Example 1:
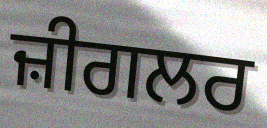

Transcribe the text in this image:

ਜ਼ੀਗਲਰ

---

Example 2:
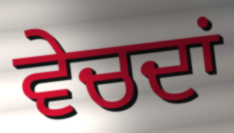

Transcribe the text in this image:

ਵੇਚਦਾਂ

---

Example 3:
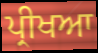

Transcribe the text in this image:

ਪ੍ਰੀਖਆ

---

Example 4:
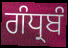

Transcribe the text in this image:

ਗੰਧ੍ਰਬੰ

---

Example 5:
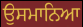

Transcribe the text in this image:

ਉਸਮਾਨਿਆ